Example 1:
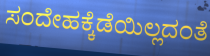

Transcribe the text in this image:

ಸಂದೇಹಕ್ಕೆಡೆಯಿಲ್ಲದಂತೆ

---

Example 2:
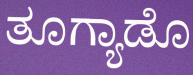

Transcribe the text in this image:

ತೂಗ್ಯಾಡೊ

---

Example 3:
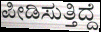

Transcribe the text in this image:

ಪೀಡಿಸುತ್ತಿದ್ದೆ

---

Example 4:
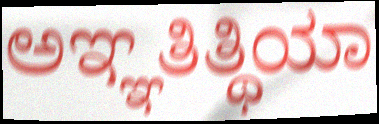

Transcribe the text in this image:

ಅಞ್ಞತಿತ್ಥಿಯಾ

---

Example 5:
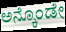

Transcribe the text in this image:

ಅನ್ಕೊಂಡೇ